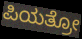
ಪಿಯತ್ರೋ